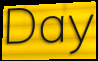
Day